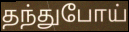
தந்துபோய்